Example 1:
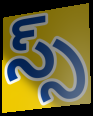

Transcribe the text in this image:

స్స్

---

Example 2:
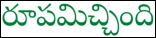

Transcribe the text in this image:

రూపమిచ్చింది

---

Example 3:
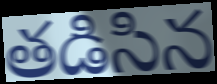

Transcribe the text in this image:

తడిసిన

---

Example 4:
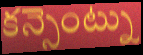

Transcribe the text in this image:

కన్సెంట్ను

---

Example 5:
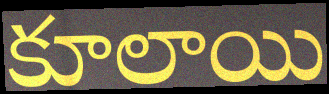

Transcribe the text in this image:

కూలాయి